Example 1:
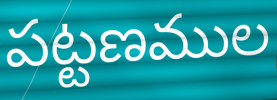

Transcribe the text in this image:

పట్టణముల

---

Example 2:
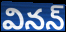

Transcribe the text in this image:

వినన్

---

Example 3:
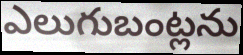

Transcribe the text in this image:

ఎలుగుబంట్లను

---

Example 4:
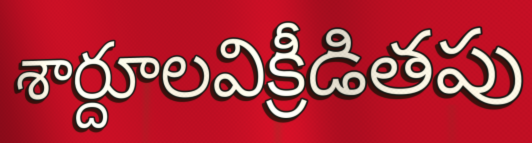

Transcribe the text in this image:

శార్దూలవిక్రీడితపు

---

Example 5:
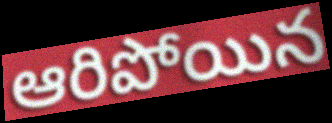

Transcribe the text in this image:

ఆరిపోయిన